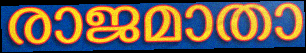
രാജമാതാ